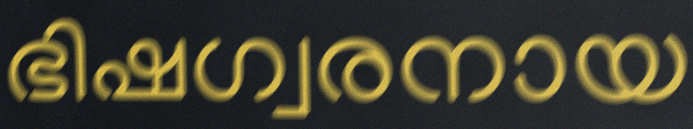
ഭിഷഗ്വരനായ